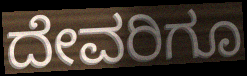
ದೇವರಿಗೂ